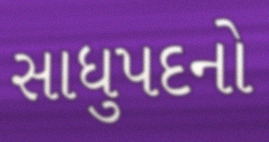
સાધુપદનો